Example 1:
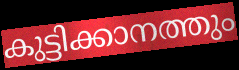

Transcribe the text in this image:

കുട്ടിക്കാനത്തും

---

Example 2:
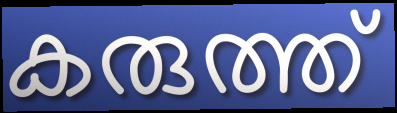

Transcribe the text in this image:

കരുത്ത്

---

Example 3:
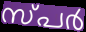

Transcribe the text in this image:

സ്പർ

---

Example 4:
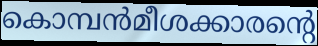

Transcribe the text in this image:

കൊമ്പൻമീശക്കാരന്റെ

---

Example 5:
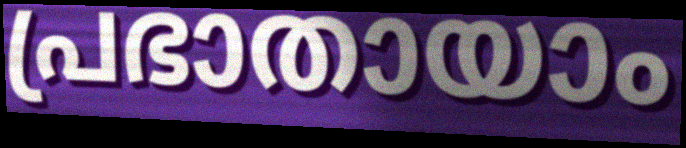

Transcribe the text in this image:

പ്രഭാതായാം